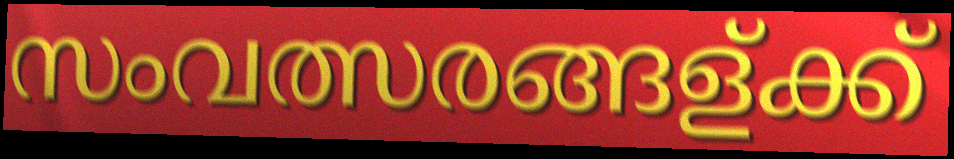
സംവത്സരങ്ങള്ക്ക്